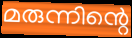
മരുന്നിന്റെ